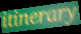
itinerary